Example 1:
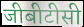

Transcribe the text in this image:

जीबीटीसी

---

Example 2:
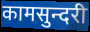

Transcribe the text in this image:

कामसुन्दरी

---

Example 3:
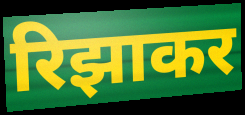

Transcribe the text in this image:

रिझाकर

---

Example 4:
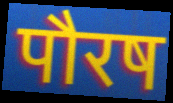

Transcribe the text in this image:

पौरष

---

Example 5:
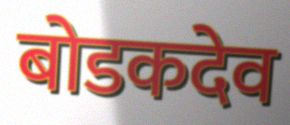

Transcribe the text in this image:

बोडकदेव